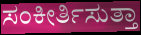
ಸಂಕೀರ್ತಿಸುತ್ತಾ